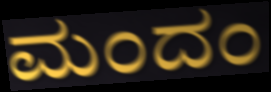
ಮಂದಂ